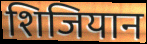
शिजियान